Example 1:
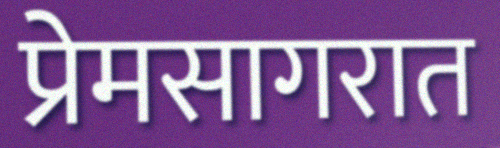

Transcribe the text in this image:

प्रेमसागरात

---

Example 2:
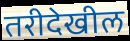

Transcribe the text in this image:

तरीदेखील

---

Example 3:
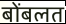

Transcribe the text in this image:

बोंबलत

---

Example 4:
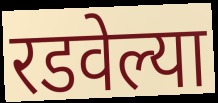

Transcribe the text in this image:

रडवेल्या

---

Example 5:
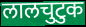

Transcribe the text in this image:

लालचुटुक